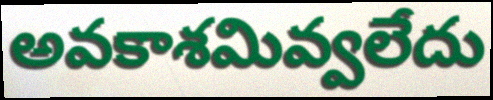
అవకాశమివ్వలేదు